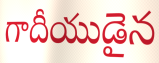
గాదీయుడైన